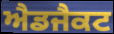
ਐਡਜੈਕਟ